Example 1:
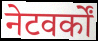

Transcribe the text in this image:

नेटवर्कों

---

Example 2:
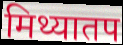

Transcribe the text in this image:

मिथ्यातप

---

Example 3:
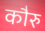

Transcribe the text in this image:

कौरु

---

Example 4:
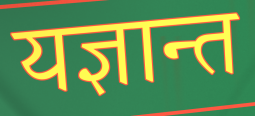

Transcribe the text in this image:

यज्ञान्त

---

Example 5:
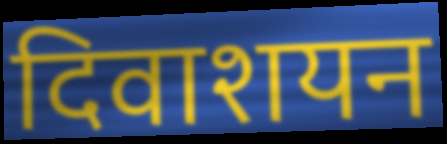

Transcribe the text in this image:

दिवाशयन